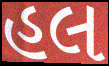
હલ